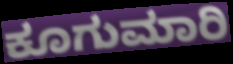
ಕೂಗುಮಾರಿ